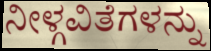
ನೀಳ್ಗವಿತೆಗಳನ್ನು